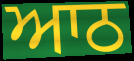
ਆਠ